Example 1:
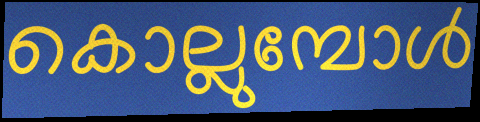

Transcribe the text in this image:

കൊല്ലുമ്പോൾ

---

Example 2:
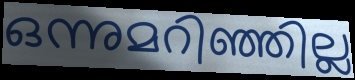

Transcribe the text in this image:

ഒന്നുമറിഞ്ഞില്ല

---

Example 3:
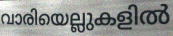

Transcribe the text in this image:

വാരിയെല്ലുകളിൽ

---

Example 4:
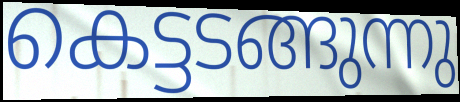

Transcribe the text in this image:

കെട്ടടങ്ങുന്നു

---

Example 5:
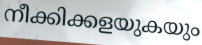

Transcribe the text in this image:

നീക്കിക്കളയുകയും